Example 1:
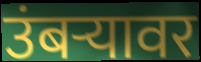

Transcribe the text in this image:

उंबर्‍यावर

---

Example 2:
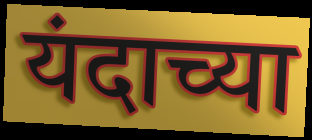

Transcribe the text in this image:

यंदाच्या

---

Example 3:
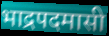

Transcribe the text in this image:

भाद्रपदमासी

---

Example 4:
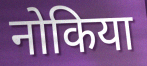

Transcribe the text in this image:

नोकिया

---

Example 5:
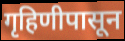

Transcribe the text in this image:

गृहिणीपासून